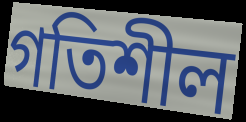
গতিশীল